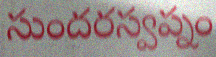
సుందరస్వప్నం